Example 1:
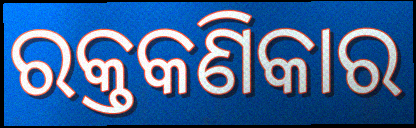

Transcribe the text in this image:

ରକ୍ତକଣିକାର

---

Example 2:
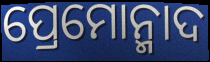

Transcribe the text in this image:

ପ୍ରେମୋନ୍ମାଦ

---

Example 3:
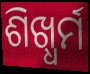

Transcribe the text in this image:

ଶିଖ୍ଧର୍ମ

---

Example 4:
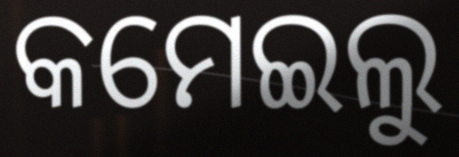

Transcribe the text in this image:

କମେଇଲୁ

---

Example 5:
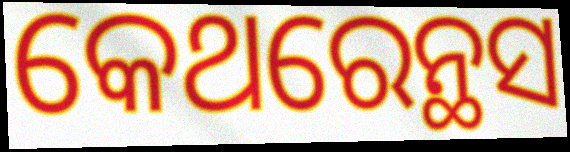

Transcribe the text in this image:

କେଥରେନ୍ଥସ